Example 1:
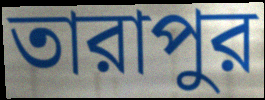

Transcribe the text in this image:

তারাপুর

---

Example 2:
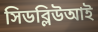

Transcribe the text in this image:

সিডব্লিউআই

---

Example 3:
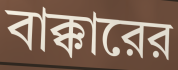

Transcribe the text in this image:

বাক্কারের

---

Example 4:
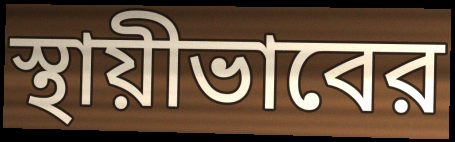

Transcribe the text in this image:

স্থায়ীভাবের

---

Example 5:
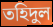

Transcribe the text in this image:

তহিদুল